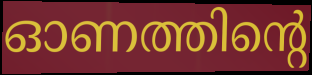
ഓണത്തിന്റെ